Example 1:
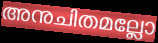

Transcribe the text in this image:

അനുചിതമല്ലോ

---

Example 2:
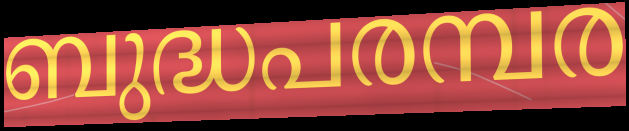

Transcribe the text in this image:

ബുദ്ധപരമ്പര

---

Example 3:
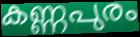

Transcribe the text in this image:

കണ്ണപുരം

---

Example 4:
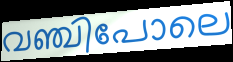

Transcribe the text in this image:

വഞ്ചിപോലെ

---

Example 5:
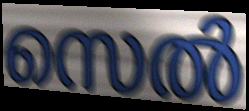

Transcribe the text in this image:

സെൽ